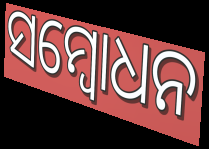
ସମ୍ବୋଧନ